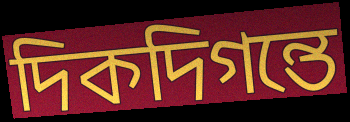
দিকদিগন্তে